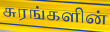
சுரங்களின்